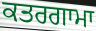
ਕਤਰਗਾਮਾ